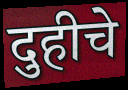
दुहीचे